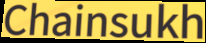
Chainsukh